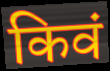
किवं